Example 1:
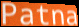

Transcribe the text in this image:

Patna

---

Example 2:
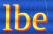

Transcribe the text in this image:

lbe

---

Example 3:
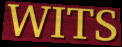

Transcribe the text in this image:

WITS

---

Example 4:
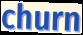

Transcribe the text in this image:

churn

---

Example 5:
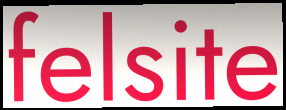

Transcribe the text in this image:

felsite